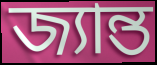
জ্যান্ত